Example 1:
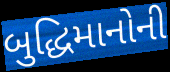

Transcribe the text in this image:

બુદ્ધિમાનોની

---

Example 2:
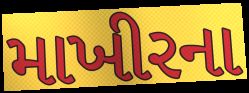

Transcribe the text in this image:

માખીરના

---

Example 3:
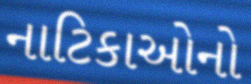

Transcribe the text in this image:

નાટિકાઓનો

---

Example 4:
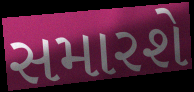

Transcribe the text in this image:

સમારશે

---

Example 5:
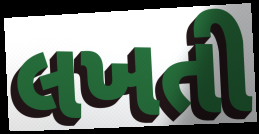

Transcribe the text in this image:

લખતી